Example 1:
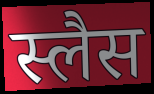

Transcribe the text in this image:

स्लैस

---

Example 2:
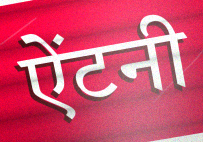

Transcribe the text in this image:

ऐंटनी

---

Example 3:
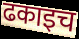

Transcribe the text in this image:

ढकाइच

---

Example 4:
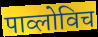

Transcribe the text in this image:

पाव्लोविच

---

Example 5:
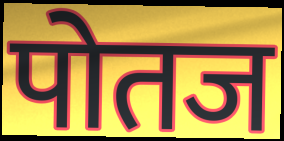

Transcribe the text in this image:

पोतज